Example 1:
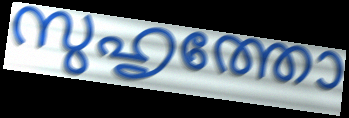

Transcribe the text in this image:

സുഹൃത്തോ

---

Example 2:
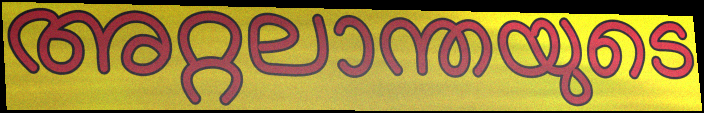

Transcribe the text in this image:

അറ്റലാന്തയുടെ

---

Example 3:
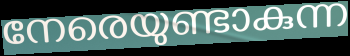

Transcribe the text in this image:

നേരെയുണ്ടാകുന്ന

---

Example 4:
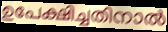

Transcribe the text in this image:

ഉപേക്ഷിച്ചതിനാൽ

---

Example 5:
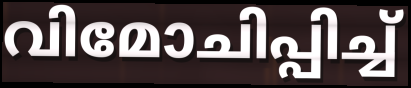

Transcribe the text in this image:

വിമോചിപ്പിച്ച്